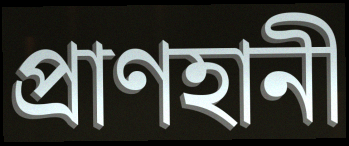
প্রাণহানী